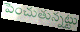
పెంచుతున్నట్టు